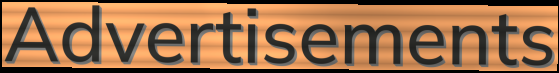
Advertisements